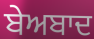
ਬੇਅਬਾਦ